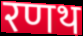
रणथ